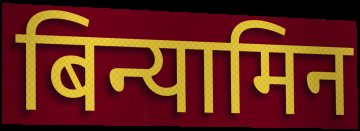
बिन्यामिन